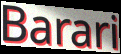
Barari